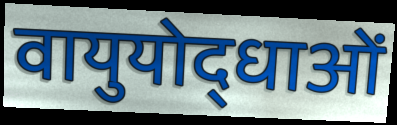
वायुयोद्धाओं